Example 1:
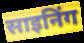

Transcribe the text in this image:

साइनिंग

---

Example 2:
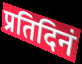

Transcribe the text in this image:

प्रतिदिनं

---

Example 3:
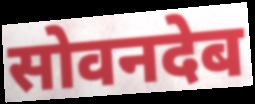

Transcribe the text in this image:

सोवनदेब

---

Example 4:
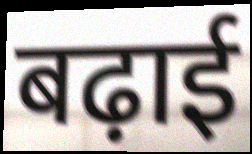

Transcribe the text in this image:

बढ़ाई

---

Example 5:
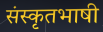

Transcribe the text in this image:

संस्कृतभाषी